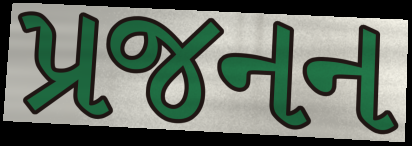
પ્રજનન